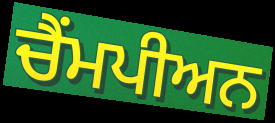
ਚੈਂਮਪੀਅਨ